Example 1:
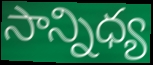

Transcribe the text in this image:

సాన్నిధ్య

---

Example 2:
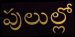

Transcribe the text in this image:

పులుల్లో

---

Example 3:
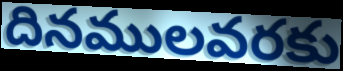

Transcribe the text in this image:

దినములవరకు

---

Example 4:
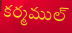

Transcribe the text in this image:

కర్మముల్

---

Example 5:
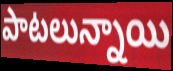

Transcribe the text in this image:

పాటలున్నాయి